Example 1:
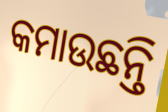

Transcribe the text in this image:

କମାଉଛନ୍ତି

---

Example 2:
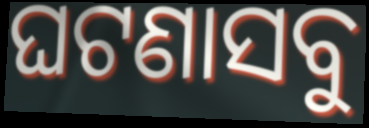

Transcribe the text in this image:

ଘଟଣାସବୁ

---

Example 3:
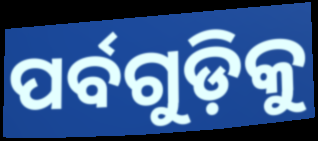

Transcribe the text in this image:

ପର୍ବଗୁଡ଼ିକୁ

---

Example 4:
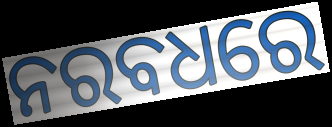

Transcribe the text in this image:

ନରବଧରେ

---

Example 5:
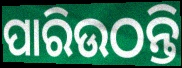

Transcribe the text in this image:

ପାରିଉଠନ୍ତି